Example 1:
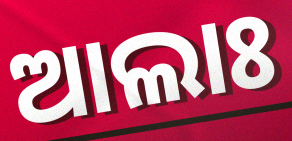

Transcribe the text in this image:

ଆଲାଃ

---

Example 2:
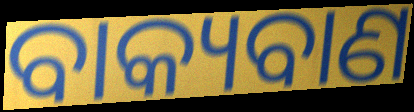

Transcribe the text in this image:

ବାକ୍ୟବାଣ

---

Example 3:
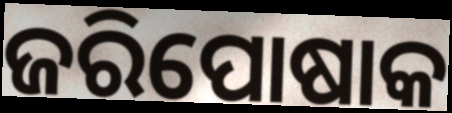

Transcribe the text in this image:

ଜରିପୋଷାକ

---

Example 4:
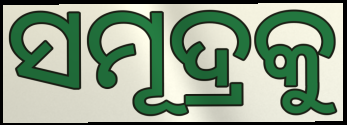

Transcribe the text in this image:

ସମୂଦ୍ରକୁ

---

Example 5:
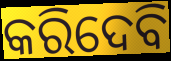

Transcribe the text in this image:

କରିଦେବି